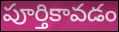
పూర్తికావడం